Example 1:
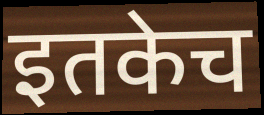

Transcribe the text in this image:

इतकेच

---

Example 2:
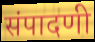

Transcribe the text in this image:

संपादणी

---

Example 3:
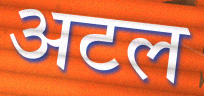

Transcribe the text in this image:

अटल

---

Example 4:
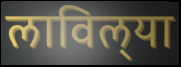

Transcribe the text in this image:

लाविल्या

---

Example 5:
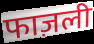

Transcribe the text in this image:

फाज़ली